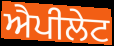
ਐਪੀਲੇਟ